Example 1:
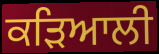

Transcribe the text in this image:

ਕੜਿਆਲੀ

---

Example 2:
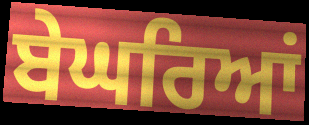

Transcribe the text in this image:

ਬੇਘਰਿਆਂ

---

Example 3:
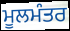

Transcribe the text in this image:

ਮੂਲਮੰਤਰ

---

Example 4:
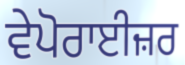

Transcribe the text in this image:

ਵੇਪੋਰਾਈਜ਼ਰ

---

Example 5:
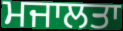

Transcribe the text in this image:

ਮਜਾਲਤਾ